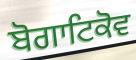
ਬੋਗਾਟਿਕੋਵ